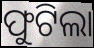
ଫୁଟିଲା